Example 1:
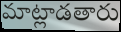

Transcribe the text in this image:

మాట్లాడతారు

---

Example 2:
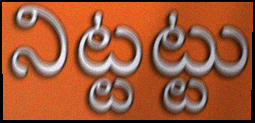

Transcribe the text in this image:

నిట్టట్టు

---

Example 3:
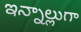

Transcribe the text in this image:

ఇన్నాల్లుగా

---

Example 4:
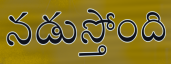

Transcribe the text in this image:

నడుస్తోంది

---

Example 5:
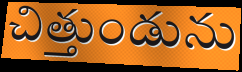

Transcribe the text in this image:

చిత్తుండును